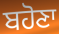
ਬਹੋਣਾ